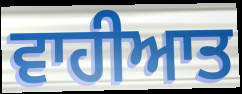
ਵਾਹੀਆਤ